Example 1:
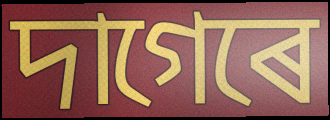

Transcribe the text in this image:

দাগেৰে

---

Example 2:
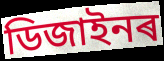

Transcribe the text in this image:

ডিজাইনৰ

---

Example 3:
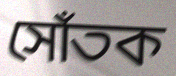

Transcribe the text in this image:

সোঁতক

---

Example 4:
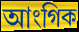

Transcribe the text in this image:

আংগিক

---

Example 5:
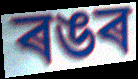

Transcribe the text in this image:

ৰঙৰ